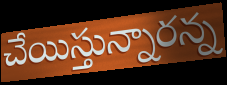
చేయిస్తున్నారన్న